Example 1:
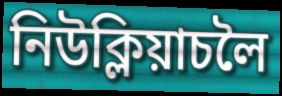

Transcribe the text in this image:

নিউক্লিয়াচলৈ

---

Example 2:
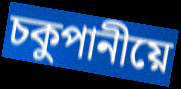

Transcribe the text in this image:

চকুপানীয়ে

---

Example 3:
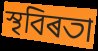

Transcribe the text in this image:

স্থবিৰতা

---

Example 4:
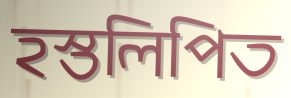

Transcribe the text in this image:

হস্তলিপিত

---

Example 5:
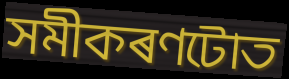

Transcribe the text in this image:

সমীকৰণটোত